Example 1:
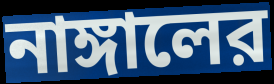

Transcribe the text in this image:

নাঙ্গালের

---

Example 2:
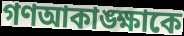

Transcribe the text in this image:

গণআকাঙ্ক্ষাকে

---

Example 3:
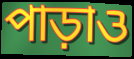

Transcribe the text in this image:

পাড়াও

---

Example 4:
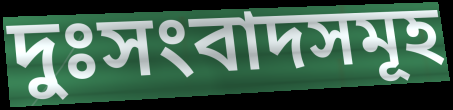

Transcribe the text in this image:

দুঃসংবাদসমূহ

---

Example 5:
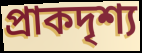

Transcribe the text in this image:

প্রাকদৃশ্য